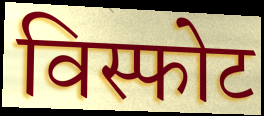
विस्फोट